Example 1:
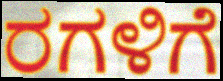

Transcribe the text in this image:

ರಗಳಿಗೆ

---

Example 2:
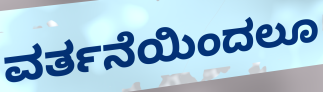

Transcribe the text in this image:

ವರ್ತನೆಯಿಂದಲೂ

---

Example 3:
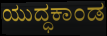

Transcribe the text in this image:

ಯುದ್ಧಕಾಂಡ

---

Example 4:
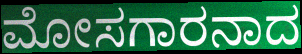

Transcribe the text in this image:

ಮೋಸಗಾರನಾದ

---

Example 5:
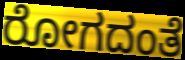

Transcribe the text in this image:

ರೋಗದಂತೆ